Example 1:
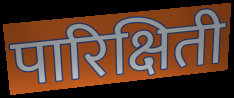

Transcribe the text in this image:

पारिक्षिती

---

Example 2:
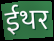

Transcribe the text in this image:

ईथर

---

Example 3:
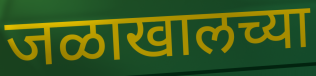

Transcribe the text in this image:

जळाखालच्या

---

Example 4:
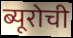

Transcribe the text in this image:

ब्यूरोची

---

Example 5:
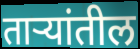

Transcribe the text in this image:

ताऱ्यांतील